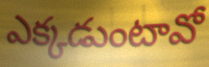
ఎక్కడుంటావో